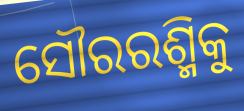
ସୌରରଶ୍ମିକୁ